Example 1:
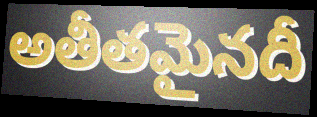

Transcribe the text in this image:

అతీతమైనదీ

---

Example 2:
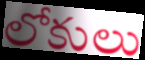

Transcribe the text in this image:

లోకులు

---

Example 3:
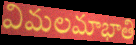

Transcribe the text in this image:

విమలమాభాతి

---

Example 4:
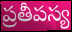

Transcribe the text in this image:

ప్రతీపస్య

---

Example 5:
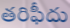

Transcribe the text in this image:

తరిఫీదు